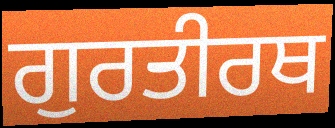
ਗੁਰਤੀਰਥ